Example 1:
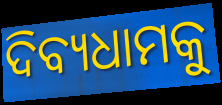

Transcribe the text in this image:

ଦିବ୍ୟଧାମକୁ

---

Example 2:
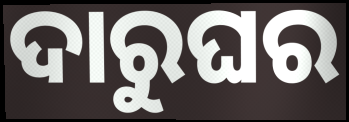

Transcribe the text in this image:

ଦାରୁଘର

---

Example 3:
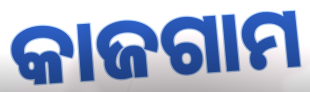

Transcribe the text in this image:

କାଜଗାମ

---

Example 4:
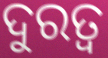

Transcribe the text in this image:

ଦୁରତ୍ଵ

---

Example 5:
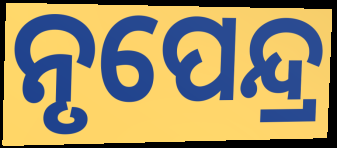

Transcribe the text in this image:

ନୃପେନ୍ଦ୍ର